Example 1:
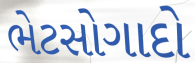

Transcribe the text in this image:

ભેટસોગાદો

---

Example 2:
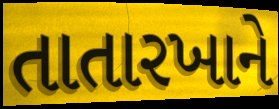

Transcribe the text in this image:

તાતારખાને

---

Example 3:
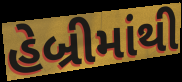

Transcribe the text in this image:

હેબ્રીમાંથી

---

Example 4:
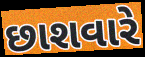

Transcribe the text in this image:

છાશવારે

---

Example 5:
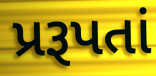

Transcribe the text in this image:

પ્રરૂપતાં